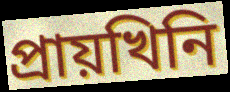
প্ৰায়খিনি